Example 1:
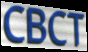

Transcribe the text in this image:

CBCT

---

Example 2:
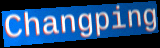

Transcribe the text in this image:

Changping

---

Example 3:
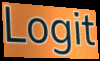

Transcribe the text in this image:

Logit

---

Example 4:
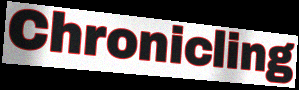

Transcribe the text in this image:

Chronicling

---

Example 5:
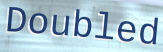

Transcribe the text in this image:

Doubled